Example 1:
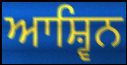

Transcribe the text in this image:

ਆਸ਼੍ਵਿਨ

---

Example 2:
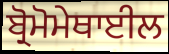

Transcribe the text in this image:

ਬ੍ਰੋਮੋਮੇਥਾਈਲ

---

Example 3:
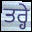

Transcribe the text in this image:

ਤਰ੍ਹੇ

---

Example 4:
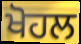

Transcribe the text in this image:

ਖੋਹਲ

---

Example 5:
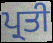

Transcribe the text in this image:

ਪ੍ਰ੍ਰਤੀ